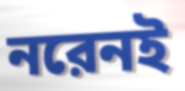
নরেনই